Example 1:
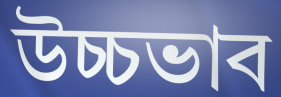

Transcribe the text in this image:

উচ্চভাব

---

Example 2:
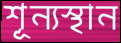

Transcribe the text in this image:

শূন্যস্থান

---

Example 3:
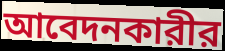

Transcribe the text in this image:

আবেদনকারীর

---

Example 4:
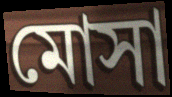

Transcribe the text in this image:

মোসা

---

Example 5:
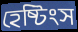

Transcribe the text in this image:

হেষ্টিংস